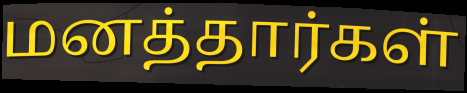
மனத்தார்கள்